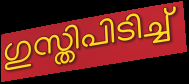
ഗുസ്തിപിടിച്ച്